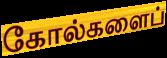
கோல்களைப்